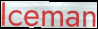
Iceman